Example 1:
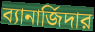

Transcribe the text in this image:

ব্যানার্জিদার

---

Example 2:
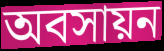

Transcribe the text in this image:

অবসায়ন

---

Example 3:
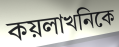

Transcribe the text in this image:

কয়লাখনিকে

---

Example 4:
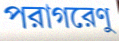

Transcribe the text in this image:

পরাগরেণু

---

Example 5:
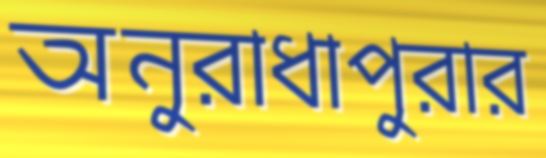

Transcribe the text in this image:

অনুরাধাপুরার